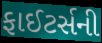
ફાઈટર્સની